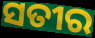
ସତୀର